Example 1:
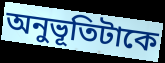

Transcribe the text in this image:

অনুভূতিটাকে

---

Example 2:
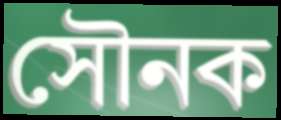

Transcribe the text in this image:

সৌনক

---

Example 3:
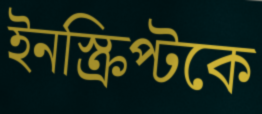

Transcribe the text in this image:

ইনস্ক্রিপ্টকে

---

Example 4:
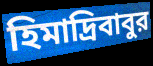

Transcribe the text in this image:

হিমাদ্রিবাবুর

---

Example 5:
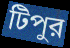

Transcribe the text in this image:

টিপুর